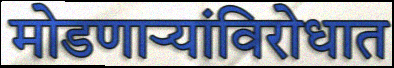
मोडणाऱ्यांविरोधात